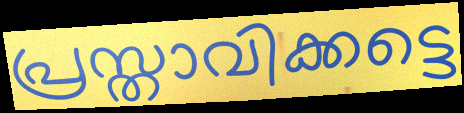
പ്രസ്താവിക്കട്ടെ